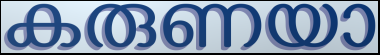
കരുണയാ